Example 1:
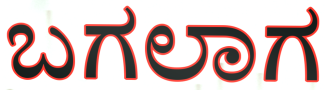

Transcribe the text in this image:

ಬಗಲಾಗ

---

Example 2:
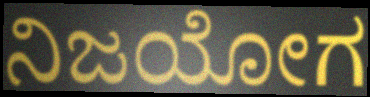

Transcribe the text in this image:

ನಿಜಯೋಗ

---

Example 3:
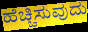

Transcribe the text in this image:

ಹೆಚ್ಚಿಸುವುದು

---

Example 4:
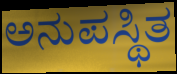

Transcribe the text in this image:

ಅನುಪಸ್ಥಿತ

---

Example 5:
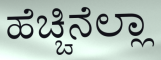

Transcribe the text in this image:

ಹೆಚ್ಚಿನೆಲ್ಲಾ